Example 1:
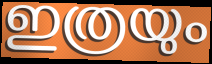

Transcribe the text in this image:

ഇത്രയും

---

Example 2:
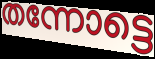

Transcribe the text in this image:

തന്നോട്ടെ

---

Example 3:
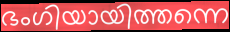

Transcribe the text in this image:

ഭംഗിയായിത്തന്നെ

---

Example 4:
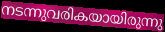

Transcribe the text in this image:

നടന്നുവരികയായിരുന്നു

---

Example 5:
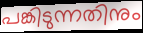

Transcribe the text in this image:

പങ്കിടുന്നതിനും